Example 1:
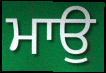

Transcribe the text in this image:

ਮਾਉ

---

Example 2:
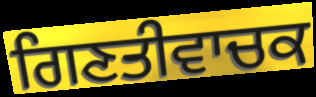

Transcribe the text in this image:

ਗਿਣਤੀਵਾਚਕ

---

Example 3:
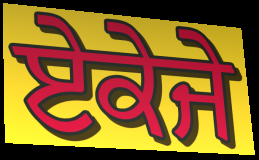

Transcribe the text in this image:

ਏਕੇਜੇ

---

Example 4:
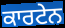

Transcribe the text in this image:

ਕਾਰਟੇਨ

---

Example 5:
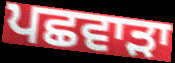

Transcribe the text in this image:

ਪਛਵਾੜਾ